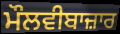
ਮੌਲਵੀਬਾਜ਼ਾਰ